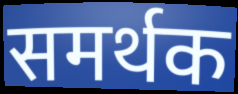
समर्थक